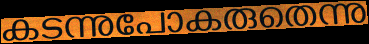
കടന്നുപോകരുതെന്നു